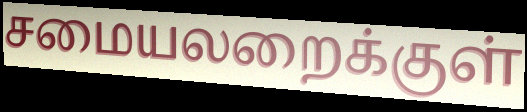
சமையலறைக்குள்